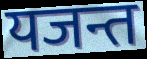
यजन्त